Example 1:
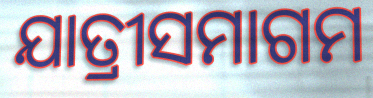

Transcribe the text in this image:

ଯାତ୍ରୀସମାଗମ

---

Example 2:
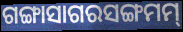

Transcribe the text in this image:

ଗଙ୍ଗାସାଗରସଙ୍ଗମମ୍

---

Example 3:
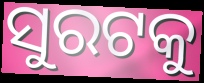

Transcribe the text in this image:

ସୁରଟକୁ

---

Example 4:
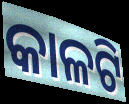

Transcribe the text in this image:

କାଳଟି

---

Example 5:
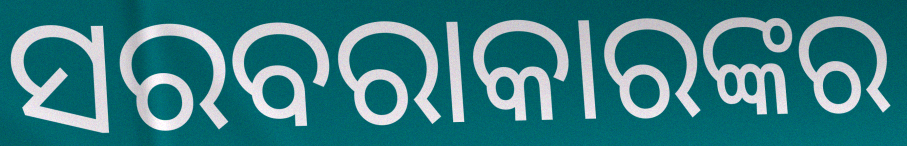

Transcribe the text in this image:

ସରବରାକାରଙ୍କର